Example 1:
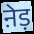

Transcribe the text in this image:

ऩेड़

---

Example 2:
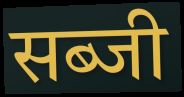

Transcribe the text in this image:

सब्जी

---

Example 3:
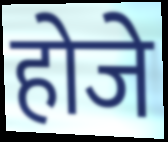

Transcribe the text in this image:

होजे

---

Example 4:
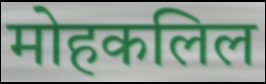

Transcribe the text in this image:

मोहकलिल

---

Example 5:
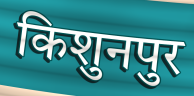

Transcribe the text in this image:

किशुनपुर